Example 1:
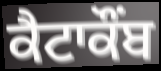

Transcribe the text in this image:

ਕੈਟਾਕੌਂਬ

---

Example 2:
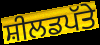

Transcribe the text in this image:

ਸ਼ੀਲਡਪੱਤੇ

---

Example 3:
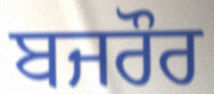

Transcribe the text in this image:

ਬਜਰੌਰ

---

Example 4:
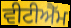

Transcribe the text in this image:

ਵੀਟੀਐੱਮ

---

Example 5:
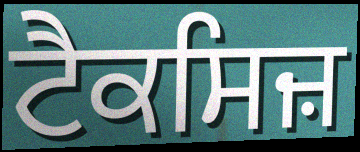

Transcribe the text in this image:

ਟੈਕਸਿਜ਼